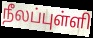
நீலப்புள்ளி